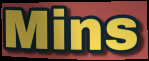
Mins